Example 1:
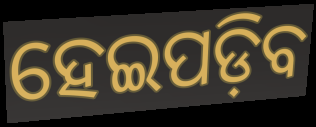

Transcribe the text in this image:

ହେଇପଡ଼ିବ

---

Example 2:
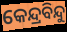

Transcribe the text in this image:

କେନ୍ଦ୍ରବିନ୍ଦୁ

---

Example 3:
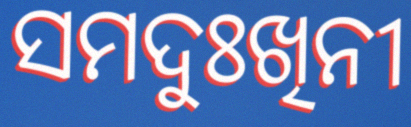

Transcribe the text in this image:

ସମଦୁଃଖିନୀ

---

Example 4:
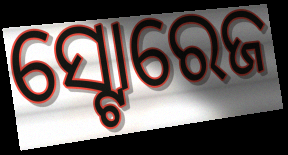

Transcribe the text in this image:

ସ୍ଟୋରେଜ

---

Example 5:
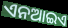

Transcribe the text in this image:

ଏନଆଇଏ